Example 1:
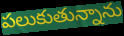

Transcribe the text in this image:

పలుకుతున్నాను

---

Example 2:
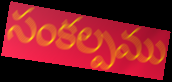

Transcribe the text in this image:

సంకల్పము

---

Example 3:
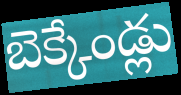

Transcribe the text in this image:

బెక్కేండ్లు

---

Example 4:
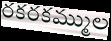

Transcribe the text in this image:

రకరకమ్ముల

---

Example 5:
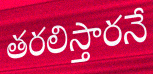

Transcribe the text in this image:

తరలిస్తారనే